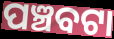
ପଞ୍ଚବଟା